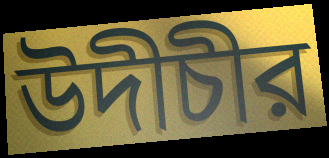
উদীচীর